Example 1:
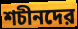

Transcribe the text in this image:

শচীনদের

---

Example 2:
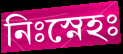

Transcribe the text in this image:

নিঃস্নেহঃ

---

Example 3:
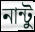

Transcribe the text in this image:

নান্টু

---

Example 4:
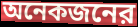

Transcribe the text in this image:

অনেকজনের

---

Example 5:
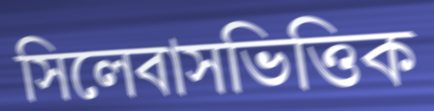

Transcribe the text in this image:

সিলেবাসভিত্তিক